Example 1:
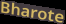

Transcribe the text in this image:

Bharote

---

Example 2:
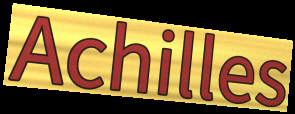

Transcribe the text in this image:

Achilles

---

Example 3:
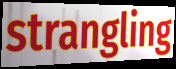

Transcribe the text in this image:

strangling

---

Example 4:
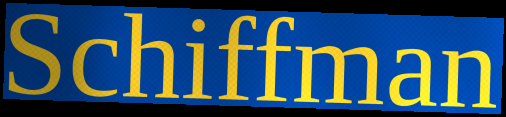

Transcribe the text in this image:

Schiffman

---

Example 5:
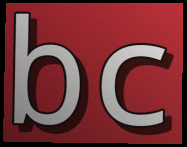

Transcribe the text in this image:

bc